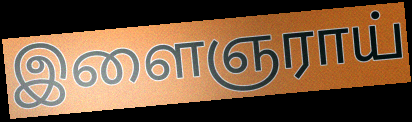
இளைஞராய்